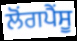
ਲੋਂਗਪੈਂਸੂ